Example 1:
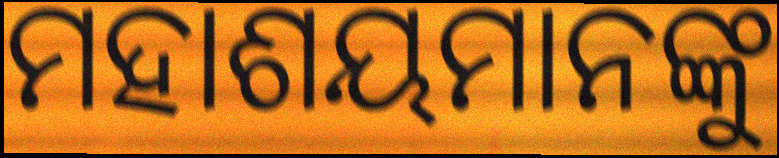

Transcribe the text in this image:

ମହାଶୟମାନଙ୍କୁ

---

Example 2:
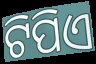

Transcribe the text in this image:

ଟିପିଏ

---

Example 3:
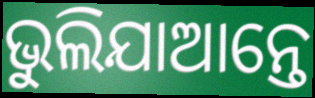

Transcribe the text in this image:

ଭୁଲିଯାଆନ୍ତେ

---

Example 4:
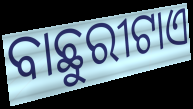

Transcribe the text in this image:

ବାଛୁରୀଟାଏ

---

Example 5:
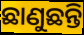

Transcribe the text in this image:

ଛାଣୁଛନ୍ତି